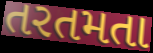
તરતમતા